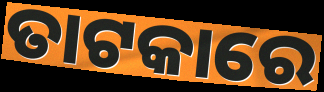
ତାଟକାରେ